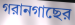
গরানগাছের